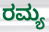
ರಮ್ಯ